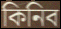
কিনিব